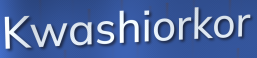
Kwashiorkor